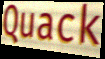
Quack